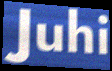
Juhi